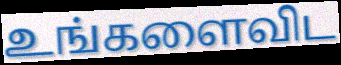
உங்களைவிட